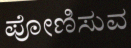
ಪೋಣಿಸುವ